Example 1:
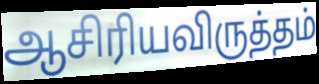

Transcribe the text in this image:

ஆசிரியவிருத்தம்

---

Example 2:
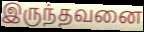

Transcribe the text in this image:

இருந்தவனை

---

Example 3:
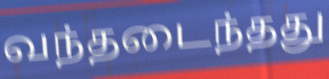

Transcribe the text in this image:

வந்தடைந்தது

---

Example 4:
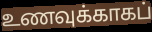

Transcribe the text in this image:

உணவுக்காகப்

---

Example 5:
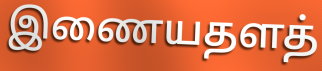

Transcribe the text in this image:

இணையதளத்